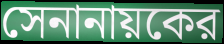
সেনানায়কের